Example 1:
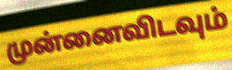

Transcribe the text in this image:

முன்னைவிடவும்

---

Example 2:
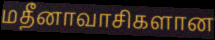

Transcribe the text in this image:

மதீனாவாசிகளான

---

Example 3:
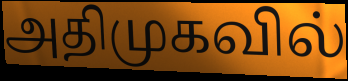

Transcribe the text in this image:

அதிமுகவில்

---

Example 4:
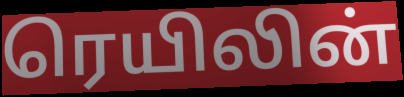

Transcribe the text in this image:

ரெயிலின்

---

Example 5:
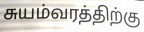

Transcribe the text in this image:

சுயம்வரத்திற்கு